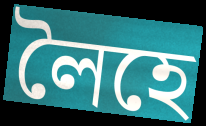
লৈহে